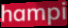
hampi